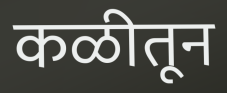
कळीतून